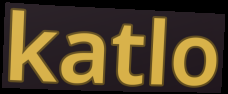
katlo